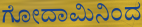
ಗೋದಾಮಿನಿಂದ